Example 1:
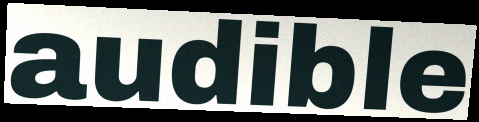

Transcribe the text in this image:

audible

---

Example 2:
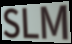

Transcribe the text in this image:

SLM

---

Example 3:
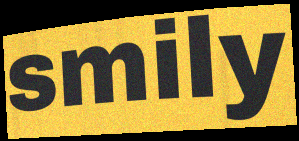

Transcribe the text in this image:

smily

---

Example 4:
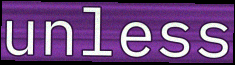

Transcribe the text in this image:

unless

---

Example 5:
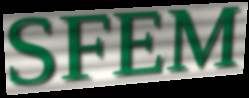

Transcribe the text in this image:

SFEM